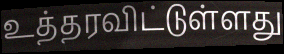
உத்தரவிட்டுள்ளது